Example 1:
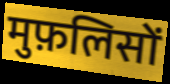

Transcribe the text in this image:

मुफ़लिसों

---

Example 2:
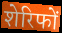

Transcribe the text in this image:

शेरिफों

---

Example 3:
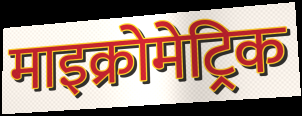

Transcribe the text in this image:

माइक्रोमेट्रिक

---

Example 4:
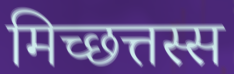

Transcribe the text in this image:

मिच्छत्तस्स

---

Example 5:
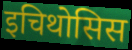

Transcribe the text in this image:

इचिथोसिस